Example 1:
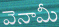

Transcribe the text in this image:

వెనామీ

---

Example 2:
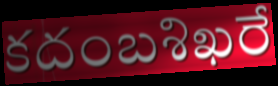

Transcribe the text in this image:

కదంబశిఖరే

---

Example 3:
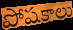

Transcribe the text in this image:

పోషకాలు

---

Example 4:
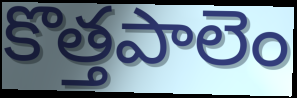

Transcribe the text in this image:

కొత్తపాలెం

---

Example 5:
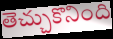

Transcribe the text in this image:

తెచ్చుకొనింది